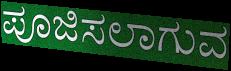
ಪೂಜಿಸಲಾಗುವ